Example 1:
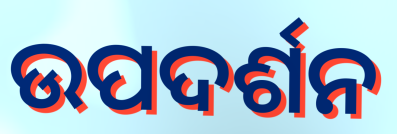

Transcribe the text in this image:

ଉପଦର୍ଶନ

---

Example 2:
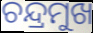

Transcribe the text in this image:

ଚନ୍ଦ୍ରମୁଖ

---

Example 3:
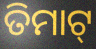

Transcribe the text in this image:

ତିମାଟ୍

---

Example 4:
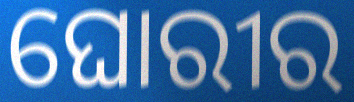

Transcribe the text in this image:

ଘୋରୀର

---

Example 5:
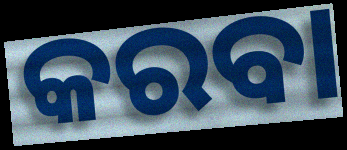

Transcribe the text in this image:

କରବା